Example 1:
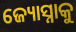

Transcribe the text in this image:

ଜ୍ୟୋସ୍ନାକୁ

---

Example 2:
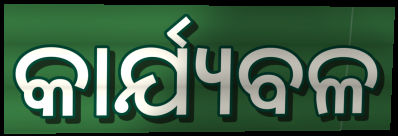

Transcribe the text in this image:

କାର୍ଯ୍ୟବଳ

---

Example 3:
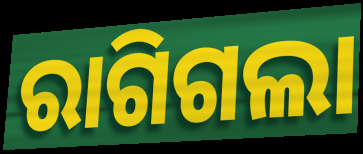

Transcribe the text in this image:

ରାଗିଗଲା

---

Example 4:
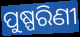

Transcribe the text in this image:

ପୁଷ୍ପରିଣୀ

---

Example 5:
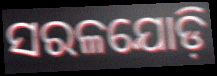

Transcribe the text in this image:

ସରଳଯୋଡ଼ି